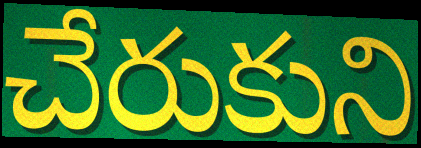
చేరుకుని